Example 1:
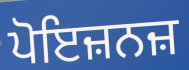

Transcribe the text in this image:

ਪੋਇਜ਼ਨਜ਼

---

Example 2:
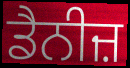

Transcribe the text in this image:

ਡੈਨੀਜ਼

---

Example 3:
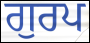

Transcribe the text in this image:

ਗੁਰਪ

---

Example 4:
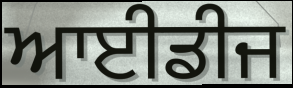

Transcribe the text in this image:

ਆਈਡੀਜ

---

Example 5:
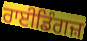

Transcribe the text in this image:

ਰਾਈਡਿੰਗਜ਼